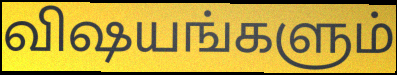
விஷயங்களும்